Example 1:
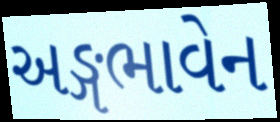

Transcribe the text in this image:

અઙ્ગભાવેન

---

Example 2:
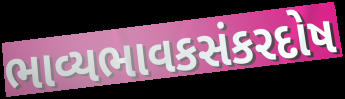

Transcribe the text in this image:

ભાવ્યભાવકસંકરદોષ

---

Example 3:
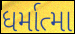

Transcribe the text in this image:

ધર્માત્મા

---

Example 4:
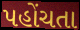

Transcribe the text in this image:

પહોંચતા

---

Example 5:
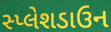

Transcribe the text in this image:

સ્પ્લેશડાઉન